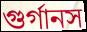
গুর্গানস